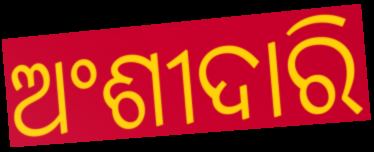
ଅଂଶୀଦାରି